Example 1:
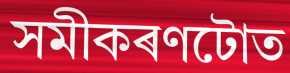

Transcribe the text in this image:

সমীকৰণটোত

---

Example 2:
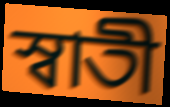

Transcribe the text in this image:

স্বাতী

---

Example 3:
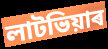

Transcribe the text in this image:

লাটভিয়াৰ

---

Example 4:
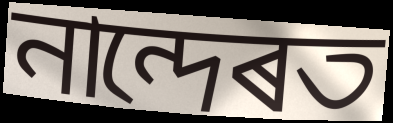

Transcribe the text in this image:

নান্দেৰত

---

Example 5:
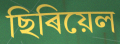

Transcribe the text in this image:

ছিৰিয়েল